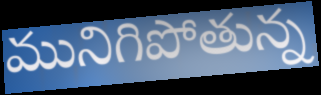
మునిగిపోతున్న